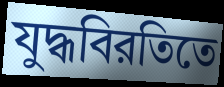
যুদ্ধবিরতিতে